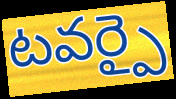
టవర్పై